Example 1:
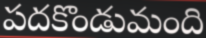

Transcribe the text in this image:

పదకొండుమంది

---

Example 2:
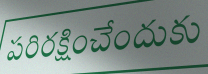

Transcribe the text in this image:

పరిరక్షించేందుకు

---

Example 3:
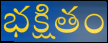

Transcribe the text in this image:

భక్షితం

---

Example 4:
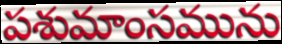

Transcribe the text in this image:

పశుమాంసమును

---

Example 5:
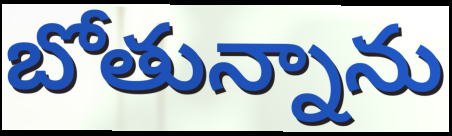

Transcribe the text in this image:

బోతున్నాను